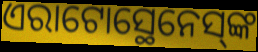
ଏରାଟୋସ୍ଥେନେସ୍‌ଙ୍କ